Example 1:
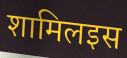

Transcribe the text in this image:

शामिलइस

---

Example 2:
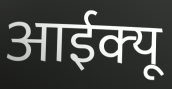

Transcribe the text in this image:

आईक्‍यू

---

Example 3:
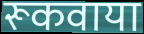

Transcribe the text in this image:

रूकवाया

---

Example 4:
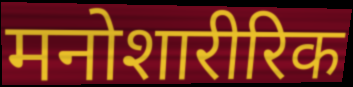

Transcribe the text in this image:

मनोशारीरिक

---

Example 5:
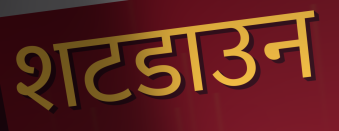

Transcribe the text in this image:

शटडाउन